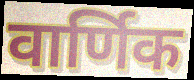
वार्णिक